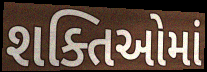
શક્તિઓમાં